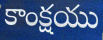
కాంక్షయు